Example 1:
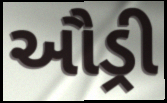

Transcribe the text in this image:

ઔડ્રી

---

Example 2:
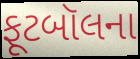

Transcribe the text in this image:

ફૂટબૉલના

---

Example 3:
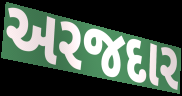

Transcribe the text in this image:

અરજદાર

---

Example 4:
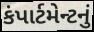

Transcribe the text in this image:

કંપાર્ટમેન્ટનું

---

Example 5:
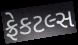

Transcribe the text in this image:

ફ્રેકટલ્સ